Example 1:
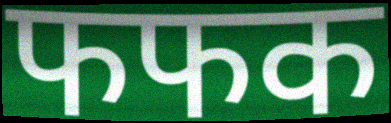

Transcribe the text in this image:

फफक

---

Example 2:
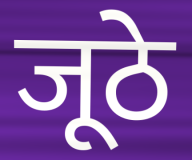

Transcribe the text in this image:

जूठे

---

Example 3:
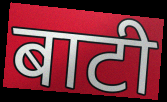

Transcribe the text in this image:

बाटी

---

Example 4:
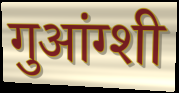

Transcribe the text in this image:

गुआंग्शी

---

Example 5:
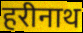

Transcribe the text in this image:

हरीनाथ